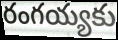
రంగయ్యకు